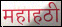
महाहठी